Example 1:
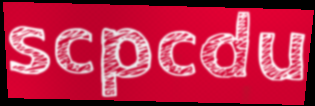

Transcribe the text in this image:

scpcdu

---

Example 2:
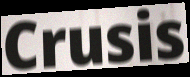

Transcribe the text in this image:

Crusis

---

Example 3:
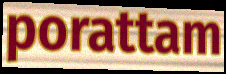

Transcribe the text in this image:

porattam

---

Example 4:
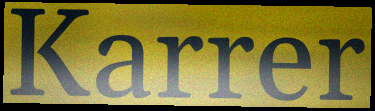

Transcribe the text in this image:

Karrer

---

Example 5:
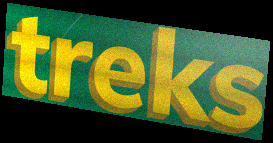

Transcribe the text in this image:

treks